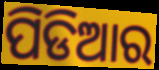
ପିଡିଆର